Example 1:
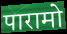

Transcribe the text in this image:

पारामो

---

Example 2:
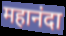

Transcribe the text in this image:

महानंदा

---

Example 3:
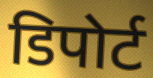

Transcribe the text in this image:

डिपोर्ट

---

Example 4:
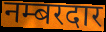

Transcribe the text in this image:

नम्बरदार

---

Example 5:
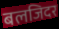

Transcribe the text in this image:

बलजिदर